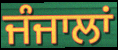
ਜੰਜਾਲਾਂ